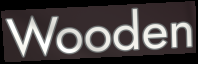
Wooden